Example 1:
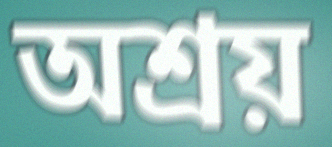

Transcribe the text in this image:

অশ্রয়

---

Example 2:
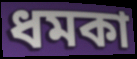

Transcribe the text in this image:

ধমকা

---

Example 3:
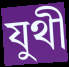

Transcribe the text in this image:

যুথী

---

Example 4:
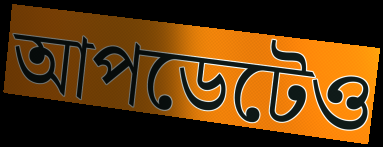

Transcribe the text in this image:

আপডেটেও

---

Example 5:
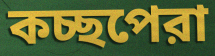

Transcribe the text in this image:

কচ্ছপেরা